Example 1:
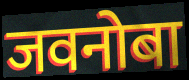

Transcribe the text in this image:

जवनोबा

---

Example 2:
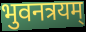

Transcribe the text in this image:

भुवनत्रयम्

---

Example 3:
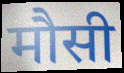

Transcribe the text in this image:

मौसी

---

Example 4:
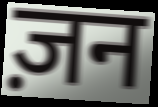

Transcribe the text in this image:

ज़न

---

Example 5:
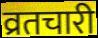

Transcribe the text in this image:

व्रतचारी